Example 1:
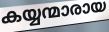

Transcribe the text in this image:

കയ്യന്മാരായ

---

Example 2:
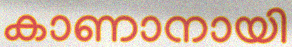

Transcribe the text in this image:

കാണാനായി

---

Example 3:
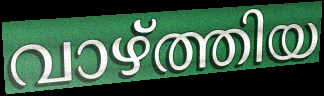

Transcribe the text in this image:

വാഴ്ത്തിയ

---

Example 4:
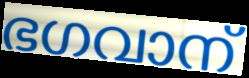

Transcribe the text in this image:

ഭഗവാന്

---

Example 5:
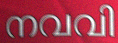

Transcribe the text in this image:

നവവി